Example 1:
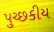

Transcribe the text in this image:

પુચ્છકીય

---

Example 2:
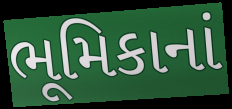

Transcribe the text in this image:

ભૂમિકાનાં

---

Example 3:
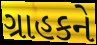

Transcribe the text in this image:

ગ્રાહકને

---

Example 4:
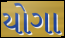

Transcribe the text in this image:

યોગા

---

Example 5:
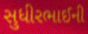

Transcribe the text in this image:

સુધીરભાઈની